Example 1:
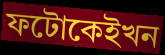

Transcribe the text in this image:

ফটোকেইখন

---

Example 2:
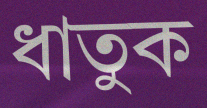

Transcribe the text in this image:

ধাতুক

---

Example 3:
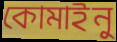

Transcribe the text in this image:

কোমাইনু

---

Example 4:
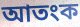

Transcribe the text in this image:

আতংক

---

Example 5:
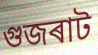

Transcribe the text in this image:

গুজৰাট